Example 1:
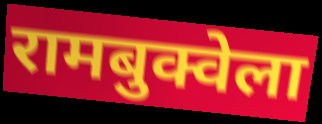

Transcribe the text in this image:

रामबुक्वेला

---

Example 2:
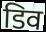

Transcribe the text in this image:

डिव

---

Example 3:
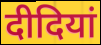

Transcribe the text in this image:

दीदियां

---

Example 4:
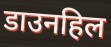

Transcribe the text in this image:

डाउनहिल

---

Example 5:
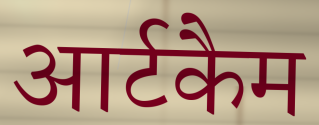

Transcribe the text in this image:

आर्टकैम